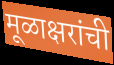
मूळाक्षरांची